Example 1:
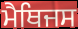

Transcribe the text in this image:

ਮੈਥਿਜਸ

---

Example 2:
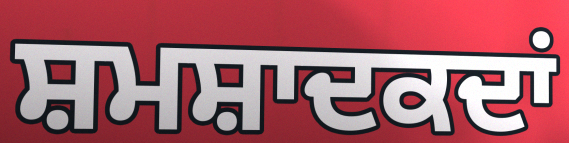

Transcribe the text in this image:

ਸ਼ਮਸ਼ਾਦਕਦਾਂ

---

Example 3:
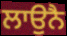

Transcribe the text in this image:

ਲਾਉਨੈ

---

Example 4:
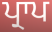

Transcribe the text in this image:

ਪ੍ਰਾਪ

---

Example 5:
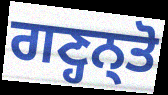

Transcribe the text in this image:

ਗਣ੍ਹਨ੍ਤੋ